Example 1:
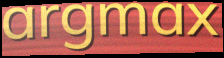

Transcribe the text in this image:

argmax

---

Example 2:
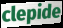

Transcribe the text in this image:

clepide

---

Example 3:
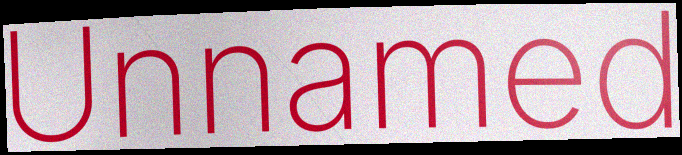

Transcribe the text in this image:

Unnamed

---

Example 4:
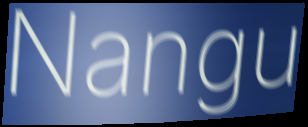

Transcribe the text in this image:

Nangu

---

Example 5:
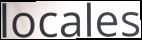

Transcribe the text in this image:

locales